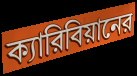
ক্যারিবিয়ানের